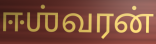
ஈஶ்வரன்